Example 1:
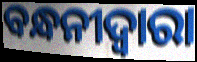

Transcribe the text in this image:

ବନ୍ଧନୀଦ୍ୱାରା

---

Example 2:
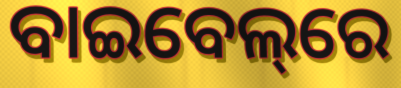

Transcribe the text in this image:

ବାଇବେଲ୍‌ରେ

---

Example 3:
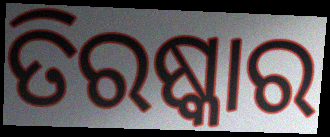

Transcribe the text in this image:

ତିରଷ୍କାର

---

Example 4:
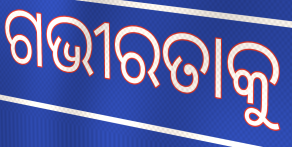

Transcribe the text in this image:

ଗଭୀରତାକୁ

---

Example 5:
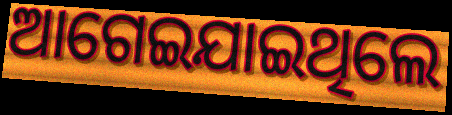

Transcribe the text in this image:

ଆଗେଇଯାଇଥିଲେ